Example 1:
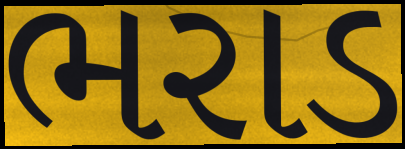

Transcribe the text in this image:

ભરાડ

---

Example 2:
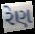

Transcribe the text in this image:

રેણ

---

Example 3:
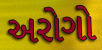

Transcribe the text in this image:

અરોગો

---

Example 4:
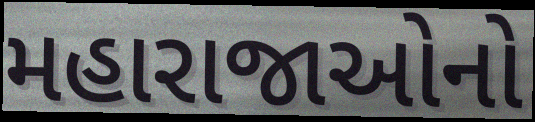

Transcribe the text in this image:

મહારાજાઓનો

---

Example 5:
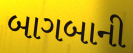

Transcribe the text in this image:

બાગબાની